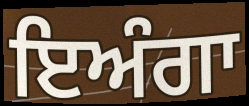
ਇਅੰਗਾ